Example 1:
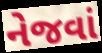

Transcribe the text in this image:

નેજવાં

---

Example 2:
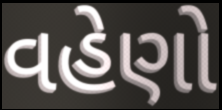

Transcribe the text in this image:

વહેણો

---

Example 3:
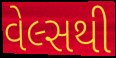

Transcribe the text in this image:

વેલ્સથી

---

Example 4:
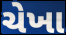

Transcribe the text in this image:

ચેખા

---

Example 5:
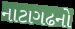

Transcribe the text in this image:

નાટાગઢનો